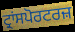
ਟ੍ਰਾਂਸਪੋਰਟਰਜ਼